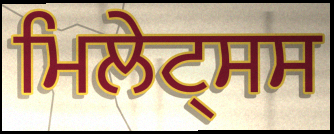
ਮਿਲੇਟ੍ਸਸ